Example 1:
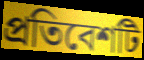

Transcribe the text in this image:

প্রতিবেশটি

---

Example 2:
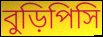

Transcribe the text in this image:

বুড়িপিসি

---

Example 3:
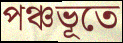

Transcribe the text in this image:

পঞ্চভূতে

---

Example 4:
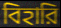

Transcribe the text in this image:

বিহারি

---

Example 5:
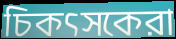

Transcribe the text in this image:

চিকৎসকেরা